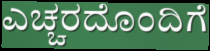
ಎಚ್ಚರದೊಂದಿಗೆ